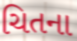
ચિતના